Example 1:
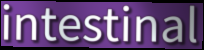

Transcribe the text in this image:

intestinal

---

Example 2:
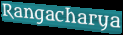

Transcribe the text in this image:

Rangacharya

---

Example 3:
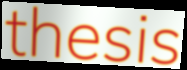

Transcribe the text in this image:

thesis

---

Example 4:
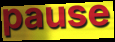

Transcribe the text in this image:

pause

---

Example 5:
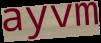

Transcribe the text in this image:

ayvm